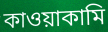
কাওয়াকামি